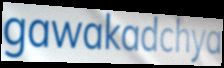
gawakadchya